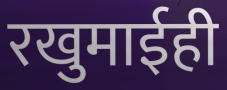
रखुमाईही